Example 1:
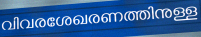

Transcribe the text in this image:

വിവരശേഖരണത്തിനുള്ള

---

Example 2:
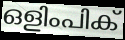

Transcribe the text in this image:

ഒളിംപിക്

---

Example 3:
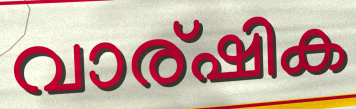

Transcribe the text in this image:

വാര്ഷിക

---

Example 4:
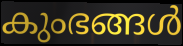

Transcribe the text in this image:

കുംഭങ്ങൾ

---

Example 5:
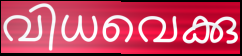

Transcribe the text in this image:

വിധവെക്കു